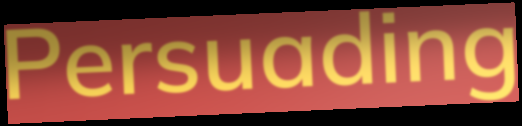
Persuading